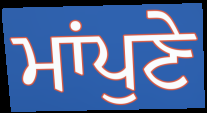
ਮਾਂਪੁਣੇ